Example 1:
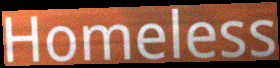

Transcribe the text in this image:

Homeless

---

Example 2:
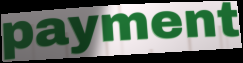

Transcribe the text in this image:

payment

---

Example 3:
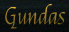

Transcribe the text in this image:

Gundas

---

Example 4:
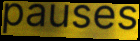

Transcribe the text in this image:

pauses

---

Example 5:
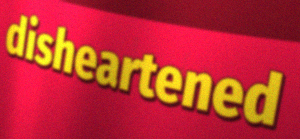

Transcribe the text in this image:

disheartened